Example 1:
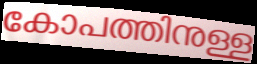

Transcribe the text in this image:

കോപത്തിനുള്ള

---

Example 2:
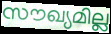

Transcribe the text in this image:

സൗഖ്യമില്ല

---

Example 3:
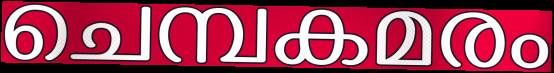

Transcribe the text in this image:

ചെമ്പകമരം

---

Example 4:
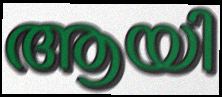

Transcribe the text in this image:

ആയി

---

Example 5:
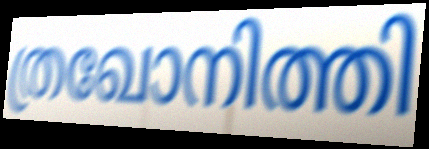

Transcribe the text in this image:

ത്രഖോനിത്തി